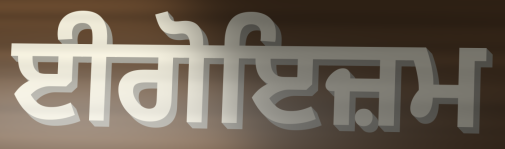
ਈਗੋਇਜ਼ਮ